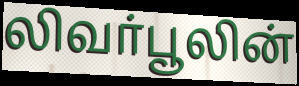
லிவர்பூலின்